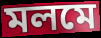
মলমে